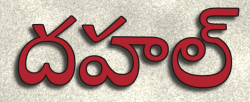
దహల్